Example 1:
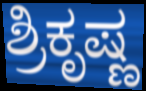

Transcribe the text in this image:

ಶ್ರಿಕೃಷ್ಣ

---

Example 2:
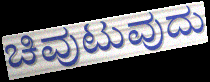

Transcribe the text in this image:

ಚಿವುಟುವುದು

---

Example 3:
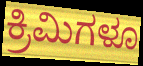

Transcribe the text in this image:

ಕ್ರಿಮಿಗಳೂ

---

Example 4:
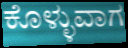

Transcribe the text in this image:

ಕೊಳ್ಳುವಾಗ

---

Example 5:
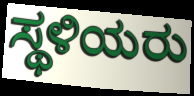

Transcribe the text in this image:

ಸ್ಥಳಿಯರು